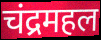
चंद्रमहल